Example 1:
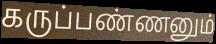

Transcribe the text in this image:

கருப்பண்ணனும்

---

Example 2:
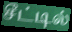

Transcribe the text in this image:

சீட்டில்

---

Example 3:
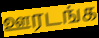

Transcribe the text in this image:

ஊரடங்க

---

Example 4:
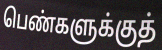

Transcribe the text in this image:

பெண்களுக்குத்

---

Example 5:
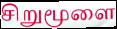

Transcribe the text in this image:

சிறுமூளை